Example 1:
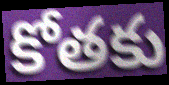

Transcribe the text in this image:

కోతకు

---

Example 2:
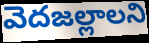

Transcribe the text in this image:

వెదజల్లాలని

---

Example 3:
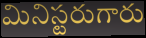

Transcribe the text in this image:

మినిస్టరుగారు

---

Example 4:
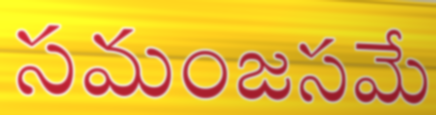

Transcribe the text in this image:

సమంజసమే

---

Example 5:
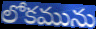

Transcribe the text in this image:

లోకమును